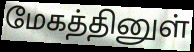
மேகத்தினுள்